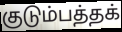
குடும்பத்தக்